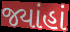
જ્યાંહાં